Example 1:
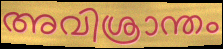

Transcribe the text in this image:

അവിശ്രാന്തം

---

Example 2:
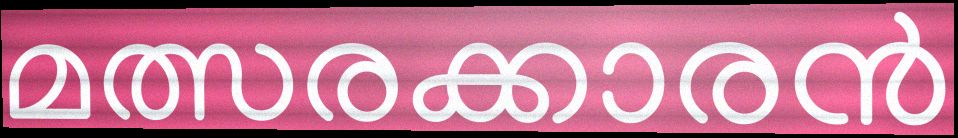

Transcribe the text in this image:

മത്സരക്കാരൻ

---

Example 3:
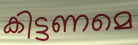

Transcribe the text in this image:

കിട്ടണമെ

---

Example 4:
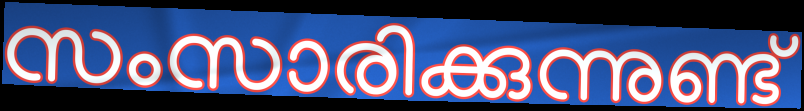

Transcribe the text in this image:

സംസാരിക്കുന്നുണ്ട്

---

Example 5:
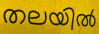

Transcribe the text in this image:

തലയിൽ